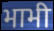
भाभी